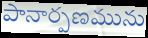
పానార్పణమును